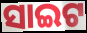
ସାଇଟ